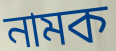
নামক